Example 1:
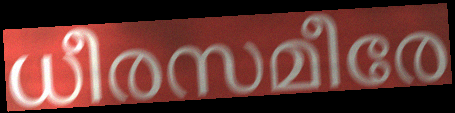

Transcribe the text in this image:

ധീരസമീരേ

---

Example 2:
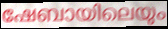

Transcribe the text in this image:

ഷേബായിലെയും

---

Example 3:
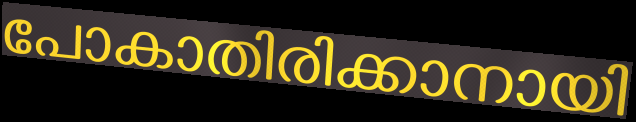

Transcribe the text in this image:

പോകാതിരിക്കാനായി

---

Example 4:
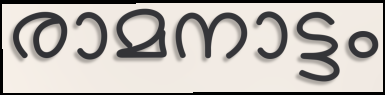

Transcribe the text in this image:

രാമനാട്ടം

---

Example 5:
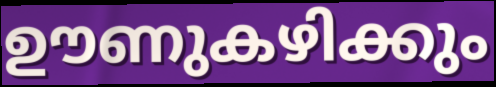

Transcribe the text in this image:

ഊണുകഴിക്കും